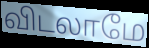
விடலாமே